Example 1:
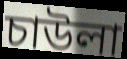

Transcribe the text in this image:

চাউলা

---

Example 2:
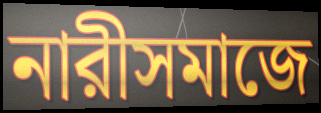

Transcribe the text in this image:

নারীসমাজে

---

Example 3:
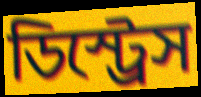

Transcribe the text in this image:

ডিস্ট্রেস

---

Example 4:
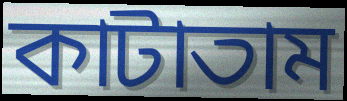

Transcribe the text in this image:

কাটাতাম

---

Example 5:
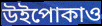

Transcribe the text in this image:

উইপোকাও